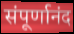
संपूर्णानंद